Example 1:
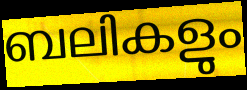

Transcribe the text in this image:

ബലികളും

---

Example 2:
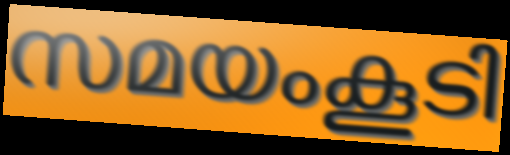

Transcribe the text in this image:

സമയംകൂടി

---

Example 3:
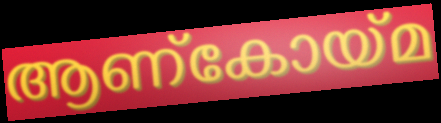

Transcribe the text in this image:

ആണ്കോയ്മ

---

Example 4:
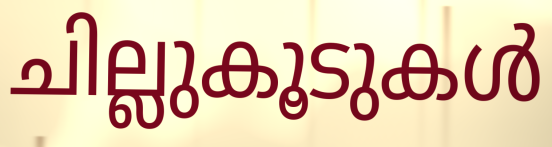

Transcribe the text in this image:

ചില്ലുകൂടുകൾ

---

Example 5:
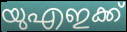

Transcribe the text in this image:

യുഎഇക്ക്